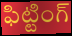
ఫిట్టింగ్